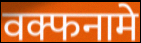
वक्फनामे